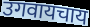
उगवायचाय